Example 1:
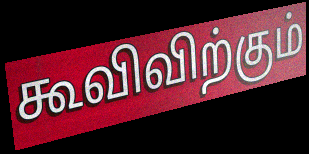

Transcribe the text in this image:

கூவிவிற்கும்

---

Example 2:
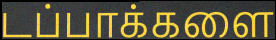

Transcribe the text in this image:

டப்பாக்களை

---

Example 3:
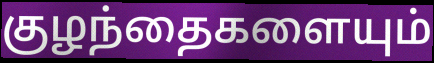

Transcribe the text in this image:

குழந்தைகளையும்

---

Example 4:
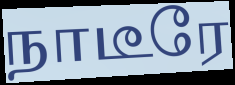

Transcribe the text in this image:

நாடீரே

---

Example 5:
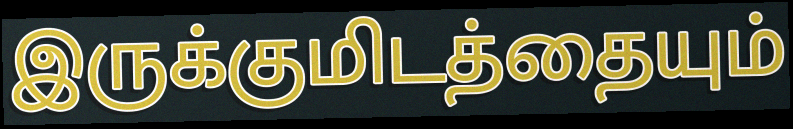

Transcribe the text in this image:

இருக்குமிடத்தையும்